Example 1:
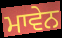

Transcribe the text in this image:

ਮਾਵੇਨ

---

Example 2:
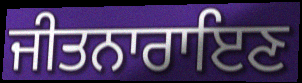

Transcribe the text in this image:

ਜੀਤਨਾਰਾਇਣ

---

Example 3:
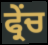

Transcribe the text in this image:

ਫ੍ਰੇੰਚ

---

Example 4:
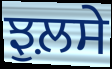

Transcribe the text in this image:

ਝੁਲ਼ਸੇ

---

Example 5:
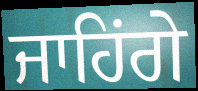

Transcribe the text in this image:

ਜਾਹਿਂਗੇ